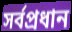
সর্বপ্রধান